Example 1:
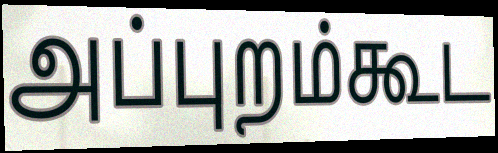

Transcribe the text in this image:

அப்புறம்கூட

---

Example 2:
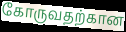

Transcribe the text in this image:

கோருவதற்கான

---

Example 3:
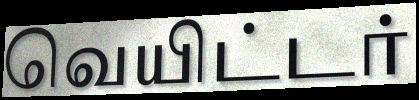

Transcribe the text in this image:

வெயிட்டர்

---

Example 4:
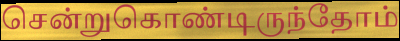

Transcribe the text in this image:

சென்றுகொண்டிருந்தோம்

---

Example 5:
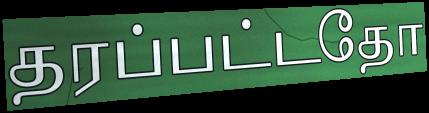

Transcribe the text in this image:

தரப்பட்டதோ